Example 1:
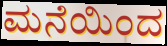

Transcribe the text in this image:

ಮನೆಯಿಂದ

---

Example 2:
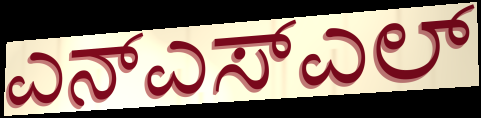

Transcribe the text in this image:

ಎನ್ಎಸ್ಎಲ್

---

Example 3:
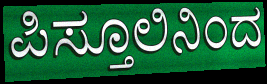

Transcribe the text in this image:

ಪಿಸ್ತೂಲಿನಿಂದ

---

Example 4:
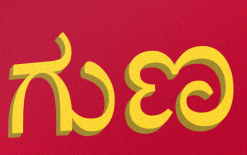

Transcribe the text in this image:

ಗುಣ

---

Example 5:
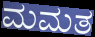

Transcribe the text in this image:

ಮಮತ